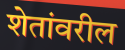
शेतांवरील